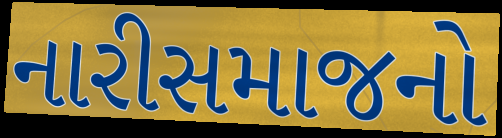
નારીસમાજનો